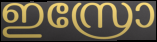
ഇസ്രോ